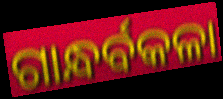
ଗାନ୍ଧର୍ବକଳା